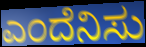
ಎಂದೆನಿಸು